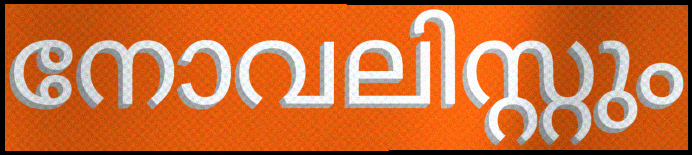
നോവലിസ്റ്റും